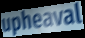
upheaval